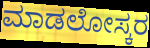
ಮಾಡಲೋಸ್ಕರ